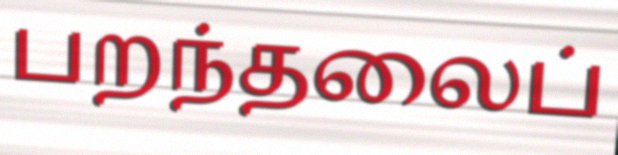
பறந்தலைப்